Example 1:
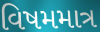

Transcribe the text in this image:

વિષમમાત્ર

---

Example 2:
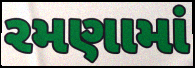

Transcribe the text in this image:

રમણામાં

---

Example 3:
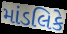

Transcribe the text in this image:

માંડલિકે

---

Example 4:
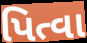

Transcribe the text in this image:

પિત્વા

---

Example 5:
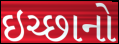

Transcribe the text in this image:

ઇચ્છાનો